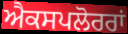
ਐਕਸਪਲੋਰਰਾਂ